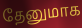
தேனுமாக